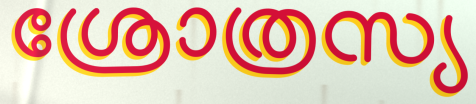
ശ്രോത്രസ്യ